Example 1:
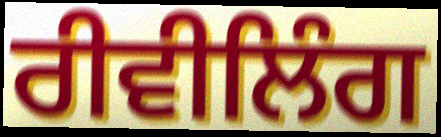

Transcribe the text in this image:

ਰੀਵੀਲਿੰਗ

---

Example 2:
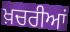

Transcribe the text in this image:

ਖ਼ਚਰੀਆਂ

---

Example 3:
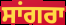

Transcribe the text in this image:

ਸਾਂਗਰਾ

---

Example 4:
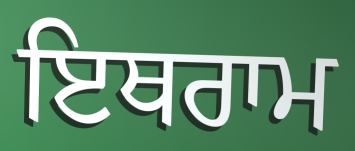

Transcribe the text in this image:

ਇਥਰਾਮ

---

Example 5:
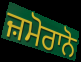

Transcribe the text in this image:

ਜ਼ਮੋਰਾਨੋ